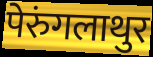
पेरुंगलाथुर